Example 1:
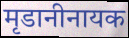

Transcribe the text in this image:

मृडानीनायक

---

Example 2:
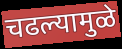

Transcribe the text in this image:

चढल्यामुळे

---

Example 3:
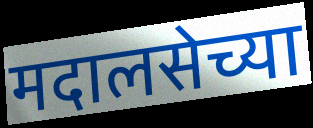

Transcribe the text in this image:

मदालसेच्या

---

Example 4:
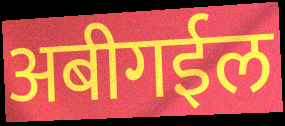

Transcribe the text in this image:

अबीगईल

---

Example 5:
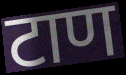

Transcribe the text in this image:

टाण